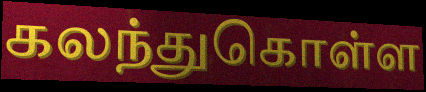
கலந்துகொள்ள